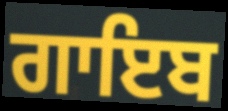
ਗਾਇਬ